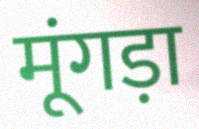
मूंगड़ा